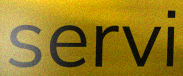
servi